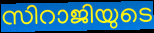
സിറാജിയുടെ